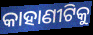
କାହାଣୀଟିକୁ